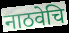
नाठवेचि